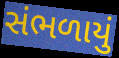
સંભળાયું